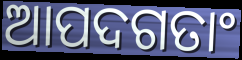
ଆପଦଗତାଂ